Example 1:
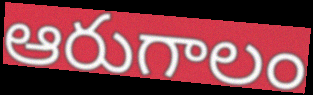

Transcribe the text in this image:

ఆరుగాలం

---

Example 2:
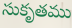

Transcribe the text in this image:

సుకృతము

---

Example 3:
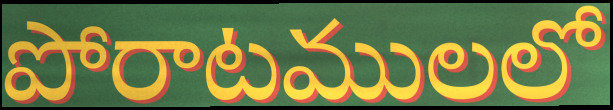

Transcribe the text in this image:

పోరాటములలో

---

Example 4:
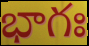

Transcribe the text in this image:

భాగః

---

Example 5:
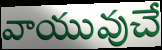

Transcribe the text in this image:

వాయువుచే